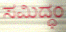
ಸಮಿದ್ಧಂ